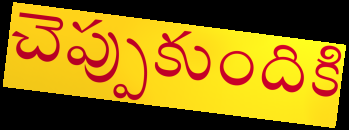
చెప్పుకుందికి